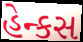
હેન્કસ